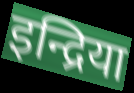
इन्द्रिया